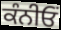
ਕੰਨੀਓਂ